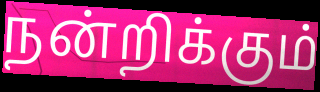
நன்றிக்கும்